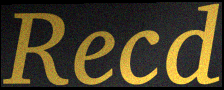
Recd